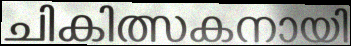
ചികിത്സകനായി